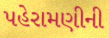
પહેરામણીની